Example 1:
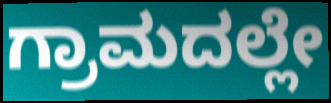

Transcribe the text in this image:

ಗ್ರಾಮದಲ್ಲೇ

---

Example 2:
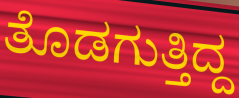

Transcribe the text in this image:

ತೊಡಗುತ್ತಿದ್ದ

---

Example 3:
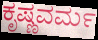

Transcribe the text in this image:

ಕೃಷ್ಣವರ್ಮ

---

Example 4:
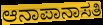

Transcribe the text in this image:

ಆನಾಪಾನಾಸತಿ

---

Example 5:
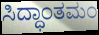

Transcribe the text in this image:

ಸಿದ್ಧಾಂತಮಂ